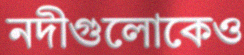
নদীগুলোকেও